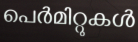
പെർമിറ്റുകൾ